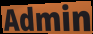
Admin